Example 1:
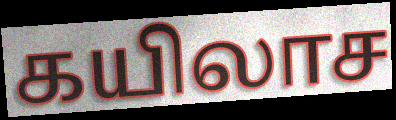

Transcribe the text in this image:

கயிலாச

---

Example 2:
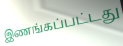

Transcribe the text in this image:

இணங்கப்பட்டது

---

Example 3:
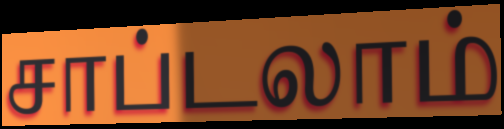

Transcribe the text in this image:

சாப்டலாம்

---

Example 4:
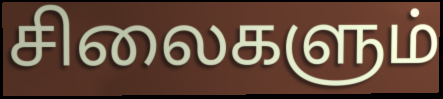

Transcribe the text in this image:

சிலைகளும்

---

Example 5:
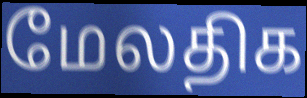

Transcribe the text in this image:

மேலதிக